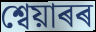
শ্বেয়াৰৰ